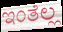
ಇಂತೆಲ್ಲ